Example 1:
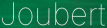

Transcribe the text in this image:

Joubert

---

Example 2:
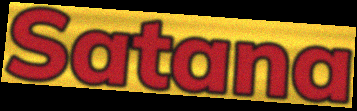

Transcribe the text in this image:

Satana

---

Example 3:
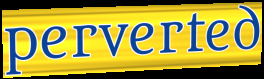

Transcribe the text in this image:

perverted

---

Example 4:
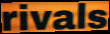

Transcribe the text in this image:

rivals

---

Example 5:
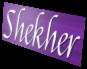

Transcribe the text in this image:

Shekher